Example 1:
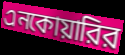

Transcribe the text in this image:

এনকোয়ারির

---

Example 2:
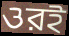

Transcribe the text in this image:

ওরই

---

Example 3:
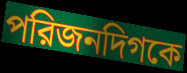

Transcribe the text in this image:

পরিজনদিগকে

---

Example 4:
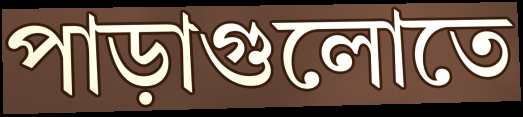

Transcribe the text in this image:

পাড়াগুলোতে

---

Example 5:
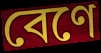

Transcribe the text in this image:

বেণে